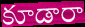
కూడారా